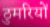
ठुमरियों